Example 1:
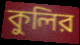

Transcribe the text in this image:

কুলির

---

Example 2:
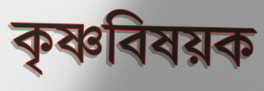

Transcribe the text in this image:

কৃষ্ণবিষয়ক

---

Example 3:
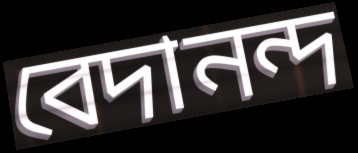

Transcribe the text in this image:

বেদানন্দ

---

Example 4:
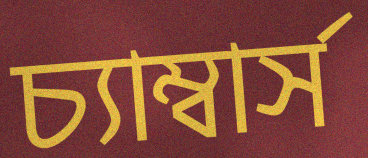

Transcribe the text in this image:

চ্যাম্বার্স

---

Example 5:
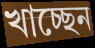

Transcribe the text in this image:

খাচ্ছেন